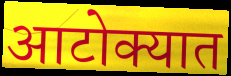
आटोक्यात